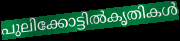
പുലിക്കോട്ടിൽകൃതികൾ